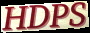
HDPS